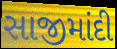
સાજીમાંદી